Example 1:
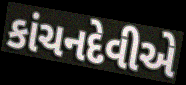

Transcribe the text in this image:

કાંચનદેવીએ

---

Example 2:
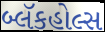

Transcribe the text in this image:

બ્લૅકહોલ્સ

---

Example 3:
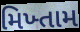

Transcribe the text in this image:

મિખ્તામ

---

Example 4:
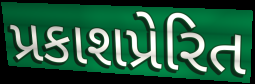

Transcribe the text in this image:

પ્રકાશપ્રેરિત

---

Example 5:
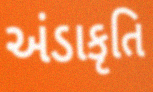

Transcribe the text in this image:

અંડાકૃતિ